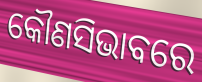
କୌଣସିଭାବରେ